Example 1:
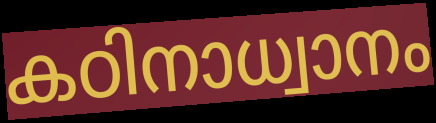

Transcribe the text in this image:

കഠിനാധ്വാനം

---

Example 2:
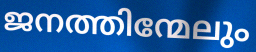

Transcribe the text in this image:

ജനത്തിന്മേലും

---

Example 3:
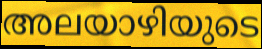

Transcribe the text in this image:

അലയാഴിയുടെ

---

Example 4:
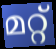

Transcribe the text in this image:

മറ്റ്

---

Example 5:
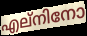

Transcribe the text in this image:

എല്നിനോ